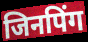
जिनपिंग